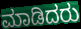
ಮಾಡಿದರು